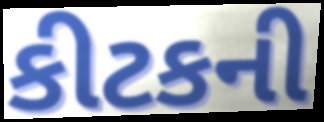
કીટકની